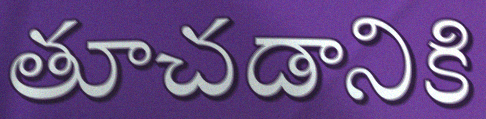
తూచడానికి